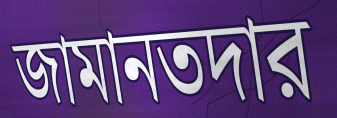
জামানতদার